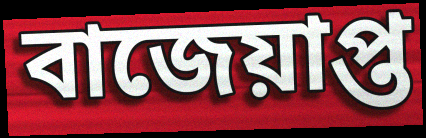
বাজেয়াপ্ত